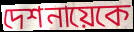
দেশনায়েকে